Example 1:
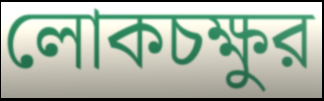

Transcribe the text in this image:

লোকচক্ষুর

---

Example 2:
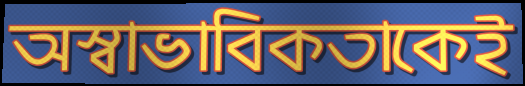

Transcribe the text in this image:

অস্বাভাবিকতাকেই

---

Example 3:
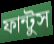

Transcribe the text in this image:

ফান্টুস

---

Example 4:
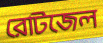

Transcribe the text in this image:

রোটজেল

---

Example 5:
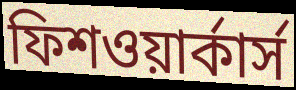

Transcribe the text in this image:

ফিশওয়ার্কার্স